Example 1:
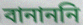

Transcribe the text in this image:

বানাননি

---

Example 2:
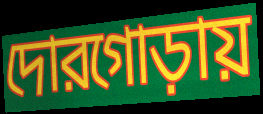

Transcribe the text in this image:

দোরগোড়ায়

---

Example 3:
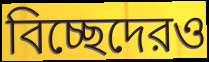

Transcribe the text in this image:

বিচ্ছেদেরও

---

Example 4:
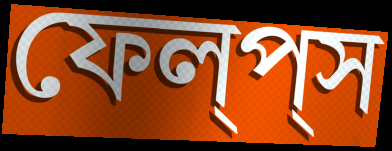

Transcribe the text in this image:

ফেল্‌প্‌স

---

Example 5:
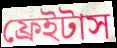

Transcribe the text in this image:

ফ্রেইটাস